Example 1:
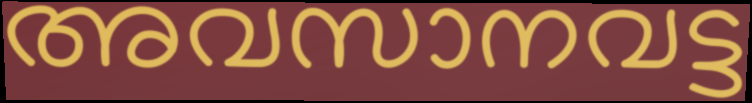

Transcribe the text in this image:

അവസാനവട്ട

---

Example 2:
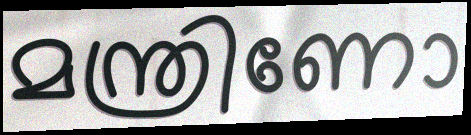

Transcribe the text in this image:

മന്ത്രിണോ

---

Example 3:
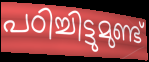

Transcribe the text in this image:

പഠിച്ചിട്ടുമുണ്ട്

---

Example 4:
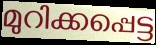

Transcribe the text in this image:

മുറിക്കപ്പെട്ട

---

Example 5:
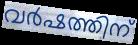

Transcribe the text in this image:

വർഷത്തിന്